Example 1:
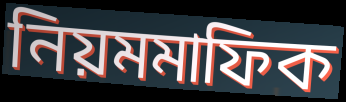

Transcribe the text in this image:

নিয়মমাফিক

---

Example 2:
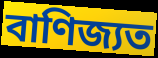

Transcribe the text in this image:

বাণিজ্যত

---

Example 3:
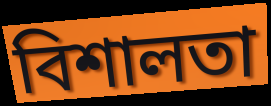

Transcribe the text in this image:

বিশালতা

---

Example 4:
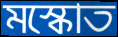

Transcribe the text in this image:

মস্কোত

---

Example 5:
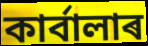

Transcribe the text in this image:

কাৰ্বালাৰ